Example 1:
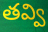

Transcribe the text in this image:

తవ్వి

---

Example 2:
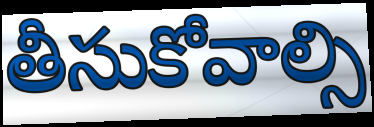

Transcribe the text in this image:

తీసుకోవాల్సి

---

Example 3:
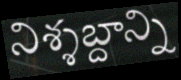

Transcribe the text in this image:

నిశ్శబ్దాన్ని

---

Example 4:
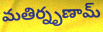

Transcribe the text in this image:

మతిర్నృణామ్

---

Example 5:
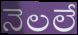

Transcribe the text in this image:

నెలలే